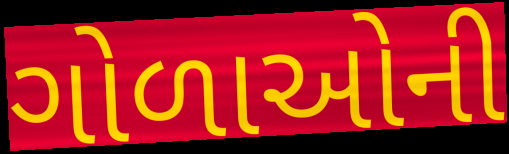
ગોળાઓની